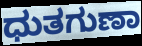
ಧುತಗುಣಾ